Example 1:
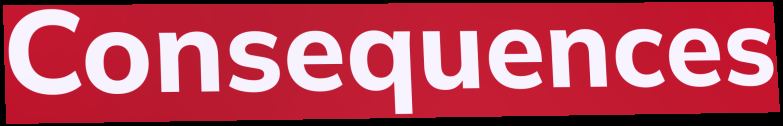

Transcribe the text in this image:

Consequences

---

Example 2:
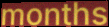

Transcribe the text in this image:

months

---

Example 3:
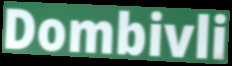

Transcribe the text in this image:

Dombivli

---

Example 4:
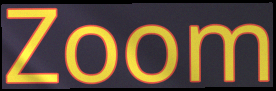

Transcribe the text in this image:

Zoom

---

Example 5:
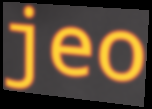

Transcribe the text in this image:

jeo